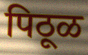
पिठूळ